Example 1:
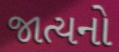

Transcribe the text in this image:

જાત્યનો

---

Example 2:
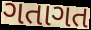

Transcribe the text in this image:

ગતાગત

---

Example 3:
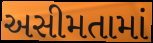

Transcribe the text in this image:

અસીમતામાં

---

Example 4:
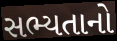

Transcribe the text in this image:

સભ્યતાનો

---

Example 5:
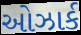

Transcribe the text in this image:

ઓઝાર્ક